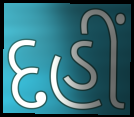
દહીં